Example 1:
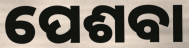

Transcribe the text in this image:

ପେଶବା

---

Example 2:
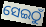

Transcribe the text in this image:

ସେଇଠୁଁ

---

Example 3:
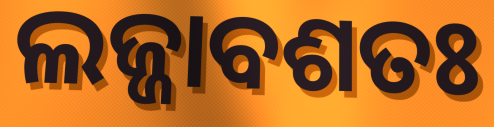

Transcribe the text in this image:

ଲଜ୍ଜାବଶତଃ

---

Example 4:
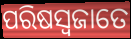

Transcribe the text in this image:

ପରିଷସ୍ଵଜାତେ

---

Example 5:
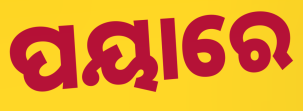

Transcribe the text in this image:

ପୟାରେ